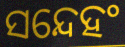
ସନ୍ଦେହଂ